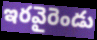
ఇరవైరెండు